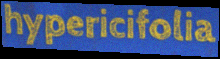
hypericifolia